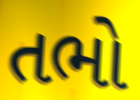
તભો